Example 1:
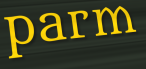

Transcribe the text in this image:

parm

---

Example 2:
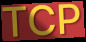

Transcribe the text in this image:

TCP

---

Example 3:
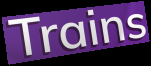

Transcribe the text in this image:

Trains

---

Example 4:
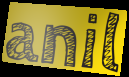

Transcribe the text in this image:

anil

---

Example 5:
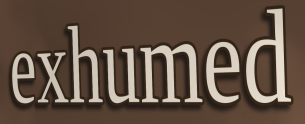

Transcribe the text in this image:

exhumed